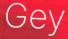
Gey